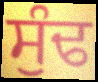
ਸੁੰਢ